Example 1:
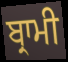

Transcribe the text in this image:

ਬ੍ਰਾਮੀ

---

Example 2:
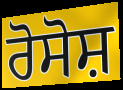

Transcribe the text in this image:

ਰੋਸੋਸ਼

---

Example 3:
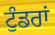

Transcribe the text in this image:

ਟੁੰਡਰਾਂ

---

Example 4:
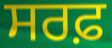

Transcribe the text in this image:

ਸਰਫ਼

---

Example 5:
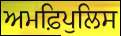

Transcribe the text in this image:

ਅਮਫ਼ਿਪੁਲਿਸ